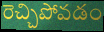
రెచ్చిపోవడం